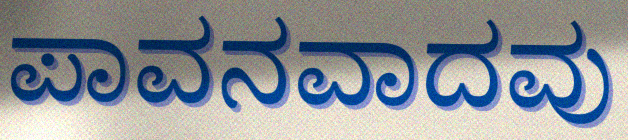
ಪಾವನವಾದವು